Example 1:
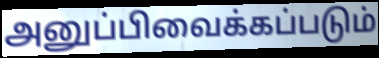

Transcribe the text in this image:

அனுப்பிவைக்கப்படும்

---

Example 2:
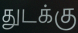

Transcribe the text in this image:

துடக்கு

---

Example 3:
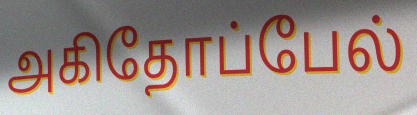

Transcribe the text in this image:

அகிதோப்பேல்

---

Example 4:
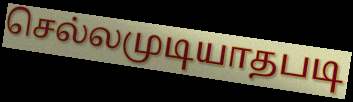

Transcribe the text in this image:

செல்லமுடியாதபடி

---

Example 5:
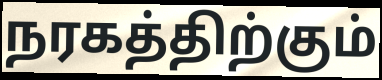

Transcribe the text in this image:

நரகத்திற்கும்